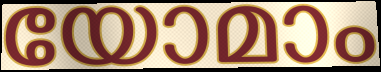
യോമാം